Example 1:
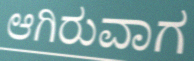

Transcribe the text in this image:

ಆಗಿರುವಾಗ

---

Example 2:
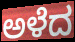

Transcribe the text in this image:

ಅಳೆದ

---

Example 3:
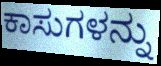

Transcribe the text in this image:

ಕಾಸುಗಳನ್ನು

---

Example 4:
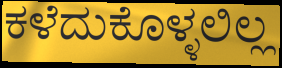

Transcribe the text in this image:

ಕಳೆದುಕೊಳ್ಳಲಿಲ್ಲ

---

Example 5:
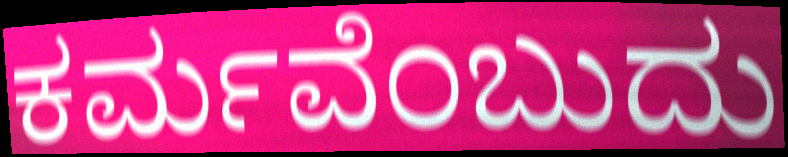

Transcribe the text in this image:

ಕರ್ಮವೆಂಬುದು